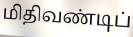
மிதிவண்டிப்